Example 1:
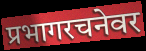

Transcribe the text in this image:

प्रभागरचनेवर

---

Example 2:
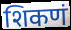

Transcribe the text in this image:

शिकणं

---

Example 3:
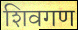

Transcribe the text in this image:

शिवगण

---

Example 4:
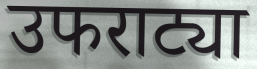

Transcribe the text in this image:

उफराट्या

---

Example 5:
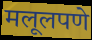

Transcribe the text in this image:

मलूलपणे